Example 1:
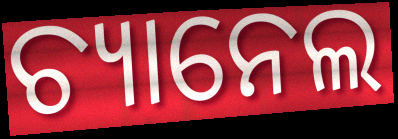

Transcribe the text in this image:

ଚ୍ୟାନେଲ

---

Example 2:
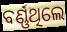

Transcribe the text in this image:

ବର୍ଣ୍ଣଥିଲେ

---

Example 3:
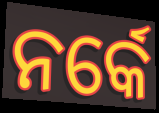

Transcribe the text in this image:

ନର୍କେ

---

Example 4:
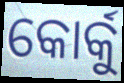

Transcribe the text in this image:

କୋର୍କୁ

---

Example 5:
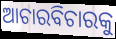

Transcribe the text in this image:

ଆଚାରବିଚାରକୁ